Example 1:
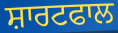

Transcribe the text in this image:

ਸ਼ਾਰਟਫਾਲ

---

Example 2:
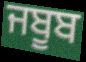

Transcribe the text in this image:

ਜਬੂਬ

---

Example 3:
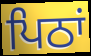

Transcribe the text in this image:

ਪਿਠਾਂ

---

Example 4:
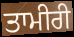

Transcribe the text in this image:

ਤਾਮੀਰੀ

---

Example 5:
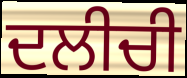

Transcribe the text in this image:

ਦਲੀਚੀ